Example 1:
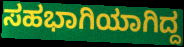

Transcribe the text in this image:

ಸಹಭಾಗಿಯಾಗಿದ್ದ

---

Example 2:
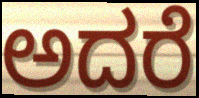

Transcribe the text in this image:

ಅದರೆ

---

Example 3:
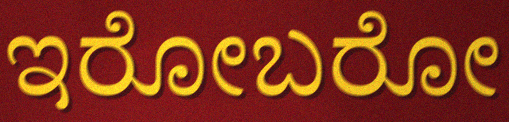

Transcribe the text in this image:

ಇರೋಬರೋ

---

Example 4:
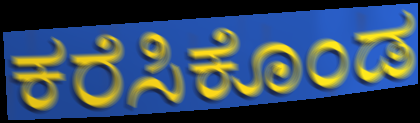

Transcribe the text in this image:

ಕರೆಸಿಕೊಂಡ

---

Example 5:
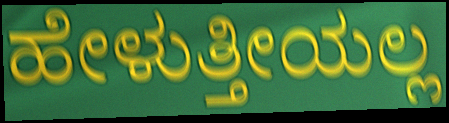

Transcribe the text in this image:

ಹೇಳುತ್ತೀಯಲ್ಲ